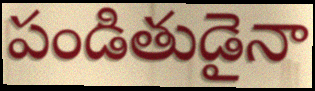
పండితుడైనా